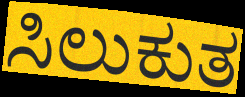
ಸಿಲುಕುತ